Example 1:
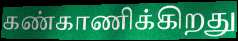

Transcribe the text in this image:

கண்காணிக்கிறது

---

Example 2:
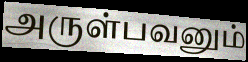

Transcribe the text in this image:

அருள்பவனும்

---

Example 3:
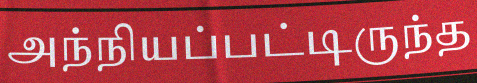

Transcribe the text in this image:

அந்நியப்பட்டிருந்த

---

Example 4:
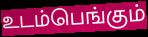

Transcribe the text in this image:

உடம்பெங்கும்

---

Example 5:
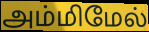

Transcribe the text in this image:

அம்மிமேல்